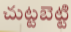
చుట్టబెట్టి